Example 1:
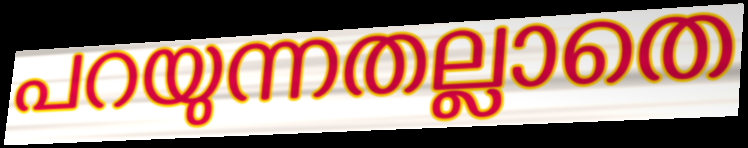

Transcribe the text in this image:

പറയുന്നതല്ലാതെ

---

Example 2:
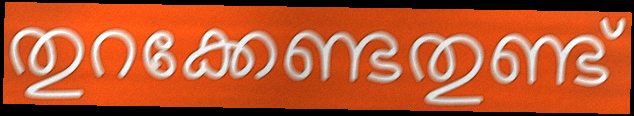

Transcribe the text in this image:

തുറക്കേണ്ടതുണ്ട്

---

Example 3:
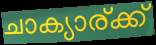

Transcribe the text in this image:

ചാക്യാര്ക്ക്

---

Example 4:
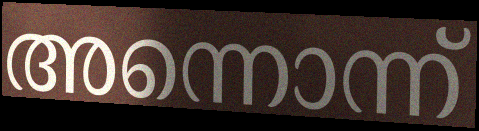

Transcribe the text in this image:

അന്നൊന്ന്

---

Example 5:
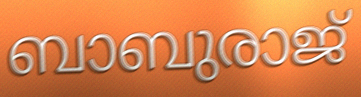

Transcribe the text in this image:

ബാബുരാജ്